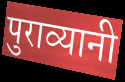
पुराव्यानी